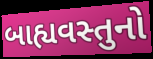
બાહ્યવસ્તુનો